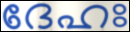
ദേഹഃ